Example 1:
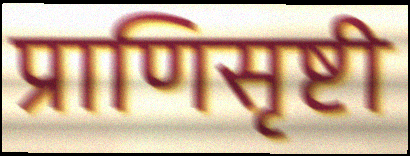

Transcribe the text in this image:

प्राणिसृष्टी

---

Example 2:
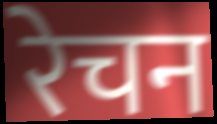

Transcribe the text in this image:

रेचन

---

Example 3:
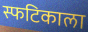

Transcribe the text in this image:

स्फटिकाला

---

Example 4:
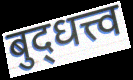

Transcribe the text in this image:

बुद्धत्त्व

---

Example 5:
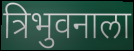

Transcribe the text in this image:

त्रिभुवनाला